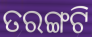
ତରଙ୍ଗଟି